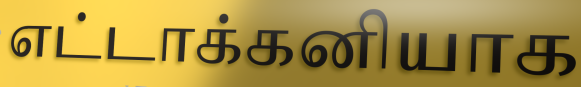
எட்டாக்கனியாக